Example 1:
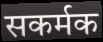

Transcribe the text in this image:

सकर्मक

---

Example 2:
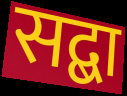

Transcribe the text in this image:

सद्बा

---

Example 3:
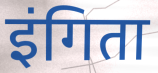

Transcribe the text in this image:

इंगिता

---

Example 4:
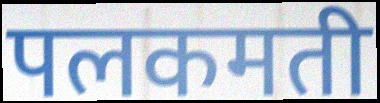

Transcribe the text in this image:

पलकमती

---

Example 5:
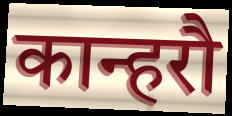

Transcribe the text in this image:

कान्हरौ